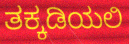
ತಕ್ಕಡಿಯಲಿ